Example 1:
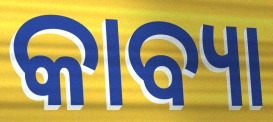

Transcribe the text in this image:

କାବ୍ୟା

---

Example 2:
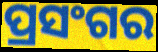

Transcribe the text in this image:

ପ୍ରସଂଗର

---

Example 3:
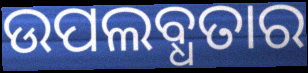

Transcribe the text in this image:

ଉପଲବ୍ଧତାର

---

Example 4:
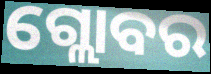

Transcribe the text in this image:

ଗ୍ଲୋବର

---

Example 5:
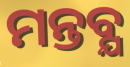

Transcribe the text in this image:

ମନ୍ତବ୍ଯ